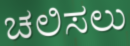
ಚಲಿಸಲು